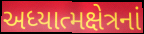
અધ્યાત્મક્ષેત્રનાં